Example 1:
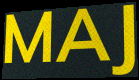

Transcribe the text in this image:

MAJ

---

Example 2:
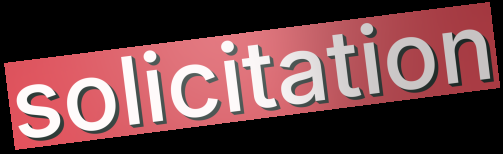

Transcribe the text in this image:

solicitation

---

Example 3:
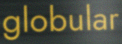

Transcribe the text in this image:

globular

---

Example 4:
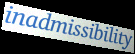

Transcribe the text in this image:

inadmissibility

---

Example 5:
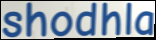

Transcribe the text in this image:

shodhla